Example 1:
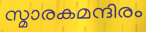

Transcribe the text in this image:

സ്മാരകമന്ദിരം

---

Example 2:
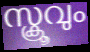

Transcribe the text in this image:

സ്ക്രൂവും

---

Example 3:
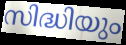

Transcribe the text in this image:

സിദ്ധിയും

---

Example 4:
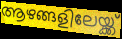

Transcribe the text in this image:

ആഴങ്ങളിലേയ്ക്ക്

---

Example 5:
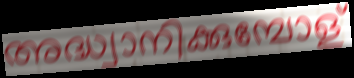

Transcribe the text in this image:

അദ്ധ്വാനിക്കുമ്പോള്